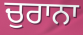
ਚੁਰਾਨਾ